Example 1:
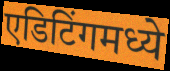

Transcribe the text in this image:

एडिटिंगमध्ये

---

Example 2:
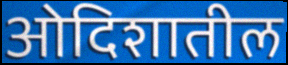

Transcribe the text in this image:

ओदिशातील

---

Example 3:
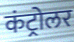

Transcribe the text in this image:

कंट्रोलर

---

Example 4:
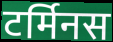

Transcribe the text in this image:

टर्मिनस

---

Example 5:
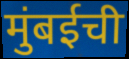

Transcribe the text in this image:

मुंबईची